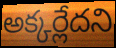
అక్కర్లేదని